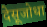
देसूजोधा